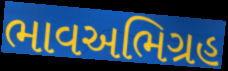
ભાવઅભિગ્રહ